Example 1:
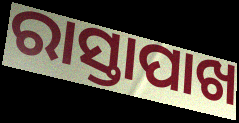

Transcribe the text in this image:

ରାସ୍ତାପାଖ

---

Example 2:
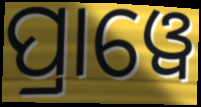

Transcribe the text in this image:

ପ୍ରାୱେ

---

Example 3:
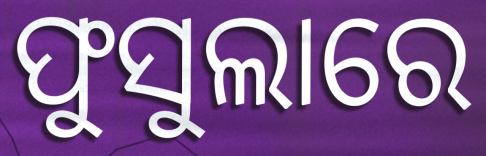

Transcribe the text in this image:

ଫୁସୁଲାରେ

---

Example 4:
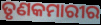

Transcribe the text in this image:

ତୃଣକମାରୀର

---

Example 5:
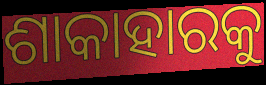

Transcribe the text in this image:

ଶାକାହାରକୁ